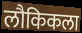
लौकिकला